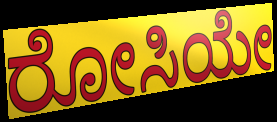
ರೋಸಿಯೇ